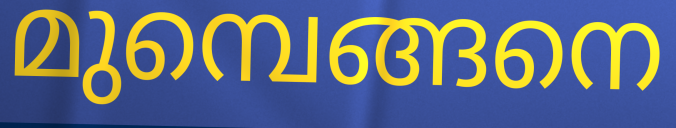
മുമ്പെങ്ങനെ